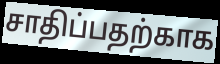
சாதிப்பதற்காக